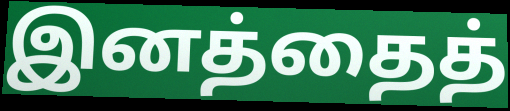
இனத்தைத்